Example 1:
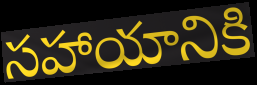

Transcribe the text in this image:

సహాయానికి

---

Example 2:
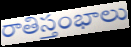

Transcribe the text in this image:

రాతిస్తంభాలు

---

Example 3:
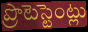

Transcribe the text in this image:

ప్రొటెస్టెంట్లు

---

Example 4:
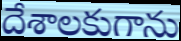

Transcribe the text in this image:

దేశాలకుగాను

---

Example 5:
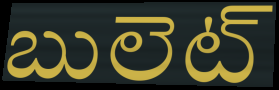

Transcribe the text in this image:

బులెట్